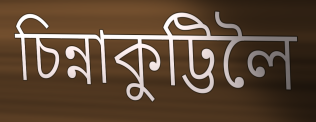
চিন্নাকুট্টিলৈ